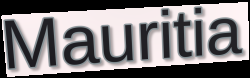
Mauritia